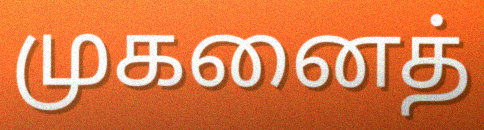
முகனைத்